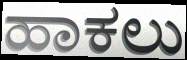
ಹಾಕಲು